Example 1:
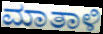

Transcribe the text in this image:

ಮಾತಾಳಿ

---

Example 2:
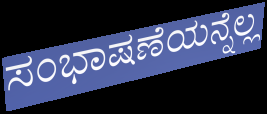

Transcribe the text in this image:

ಸಂಭಾಷಣೆಯನ್ನೆಲ್ಲ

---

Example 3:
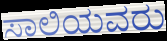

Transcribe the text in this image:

ಸಾಲಿಯವರು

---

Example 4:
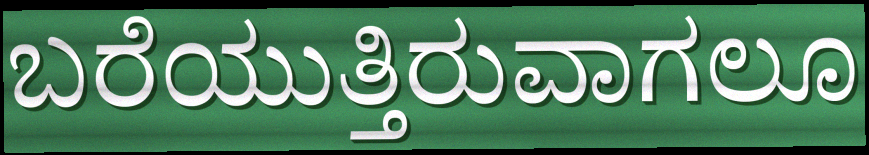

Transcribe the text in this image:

ಬರೆಯುತ್ತಿರುವಾಗಲೂ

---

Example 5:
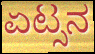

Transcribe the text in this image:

ಏಟ್ಸನ